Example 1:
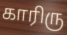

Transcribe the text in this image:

காரிரு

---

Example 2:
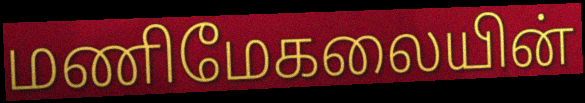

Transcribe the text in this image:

மணிமேகலையின்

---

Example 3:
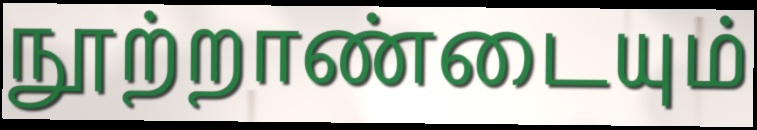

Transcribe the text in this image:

நூற்றாண்டையும்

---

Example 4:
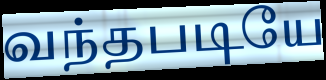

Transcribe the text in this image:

வந்தபடியே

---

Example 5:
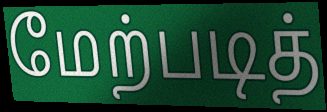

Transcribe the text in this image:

மேற்படித்